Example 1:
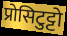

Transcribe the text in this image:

प्रोसिटुट्टो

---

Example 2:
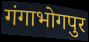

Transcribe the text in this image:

गंगाभोगपुर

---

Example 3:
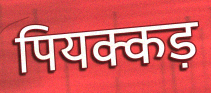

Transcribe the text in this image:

पियक्कड़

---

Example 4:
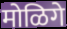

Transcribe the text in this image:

मोळिगे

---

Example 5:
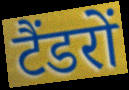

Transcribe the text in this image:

टैंडरों